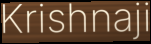
Krishnaji